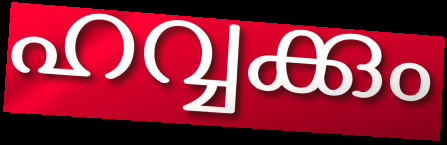
ഹവ്വക്കും